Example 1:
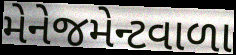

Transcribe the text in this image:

મેનેજમેન્ટવાળા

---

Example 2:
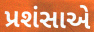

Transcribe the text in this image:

પ્રશંસાએ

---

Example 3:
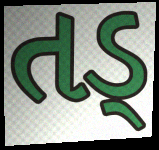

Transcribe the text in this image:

તડ્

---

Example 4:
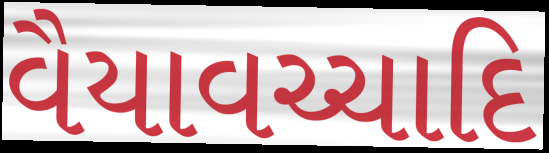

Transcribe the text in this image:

વૈયાવચ્ચાદિ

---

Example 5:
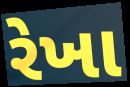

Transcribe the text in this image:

રેખા